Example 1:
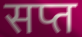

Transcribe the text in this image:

सप्त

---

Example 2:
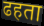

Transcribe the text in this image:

ढहता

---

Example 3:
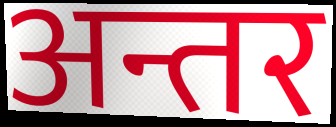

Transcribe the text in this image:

अन्‍तर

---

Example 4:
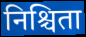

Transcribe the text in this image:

निश्चिता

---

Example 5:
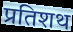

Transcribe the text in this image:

प्रतिशथ